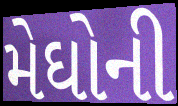
મેઘોની